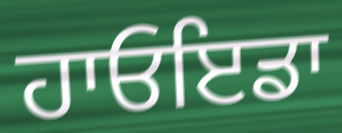
ਹਾਓਇਡਾ